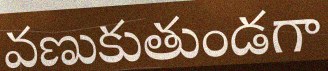
వణుకుతుండగా